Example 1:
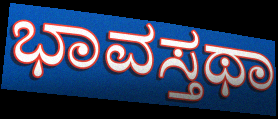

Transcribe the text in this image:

ಭಾವಸ್ತಥಾ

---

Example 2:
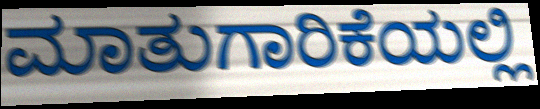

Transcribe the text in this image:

ಮಾತುಗಾರಿಕೆಯಲ್ಲಿ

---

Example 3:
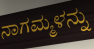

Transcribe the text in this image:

ನಾಗಮ್ಮಳನ್ನು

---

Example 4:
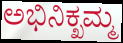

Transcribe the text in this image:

ಅಭಿನಿಕ್ಖಮ್ಮ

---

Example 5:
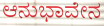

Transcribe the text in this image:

ಆನುಭಾವೇನ